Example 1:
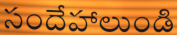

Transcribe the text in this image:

సందేహాలుండి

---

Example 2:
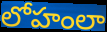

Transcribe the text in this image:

లోహంలా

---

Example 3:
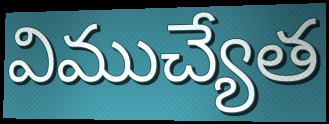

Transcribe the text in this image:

విముచ్యేత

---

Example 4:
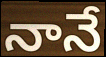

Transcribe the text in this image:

నానే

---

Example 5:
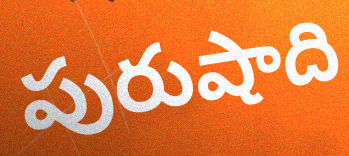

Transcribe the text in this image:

పురుషాది